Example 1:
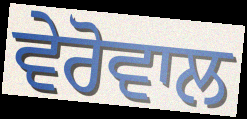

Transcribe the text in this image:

ਵੇਰੋਵਾਲ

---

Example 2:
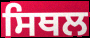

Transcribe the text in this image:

ਸਿਥਲ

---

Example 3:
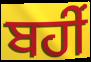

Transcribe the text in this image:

ਬਹੀਂ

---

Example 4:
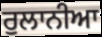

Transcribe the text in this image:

ਰੁਲਾਨੀਆ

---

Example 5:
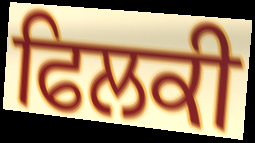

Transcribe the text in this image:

ਫਿਲਕੀ